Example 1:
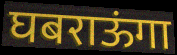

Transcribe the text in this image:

घबराऊंगा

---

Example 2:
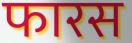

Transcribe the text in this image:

फारस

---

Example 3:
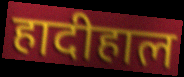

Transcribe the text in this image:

हादीहाल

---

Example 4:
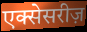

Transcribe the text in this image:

एक्सेसरीज़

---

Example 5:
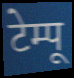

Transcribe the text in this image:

टेम्पू